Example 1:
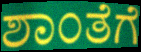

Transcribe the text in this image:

ಶಾಂತೆಗೆ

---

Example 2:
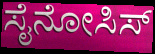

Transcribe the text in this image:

ಸೈನೋಸಿಸ್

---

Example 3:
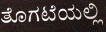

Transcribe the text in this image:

ತೊಗಟೆಯಲ್ಲಿ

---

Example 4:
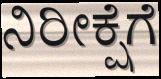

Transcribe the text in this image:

ನಿರೀಕ್ಷೆಗೆ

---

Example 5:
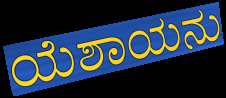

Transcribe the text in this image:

ಯೆಶಾಯನು